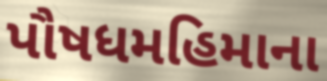
પૌષધમહિમાના